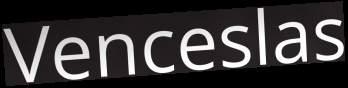
Venceslas